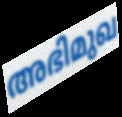
അഭിമുഖ